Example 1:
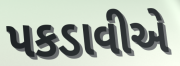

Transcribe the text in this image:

પકડાવીએ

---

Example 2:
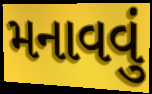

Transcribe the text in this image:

મનાવવું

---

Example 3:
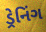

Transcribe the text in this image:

ડ્રેનિંગ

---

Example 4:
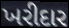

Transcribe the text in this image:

ખરીદાર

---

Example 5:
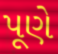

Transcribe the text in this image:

પૂણે